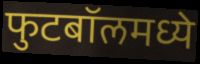
फुटबॉलमध्ये